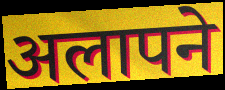
अलापने